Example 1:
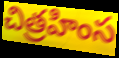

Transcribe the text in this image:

చిత్రహింస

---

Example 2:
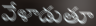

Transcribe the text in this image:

వేళాడుతూ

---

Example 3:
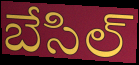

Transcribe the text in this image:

బేసిల్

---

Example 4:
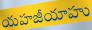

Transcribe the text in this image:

యహజీయాహు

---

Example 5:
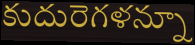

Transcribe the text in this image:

కుదురెగళన్నూ